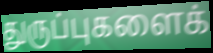
துருப்புகளைக்